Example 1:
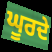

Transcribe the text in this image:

ਘੂਰਦੇ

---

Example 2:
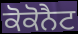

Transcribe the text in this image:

ਕੋਕੋਨੈਟ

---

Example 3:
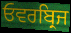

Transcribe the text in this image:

ਓਵਰਬ੍ਰਿਜ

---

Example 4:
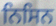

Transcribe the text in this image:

ਨਿਸਿਨ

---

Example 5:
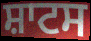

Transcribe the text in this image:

ਸ਼ਾਟਸ